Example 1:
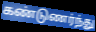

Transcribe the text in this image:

கண்டுணர்ந்து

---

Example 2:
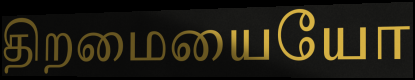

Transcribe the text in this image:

திறமையையோ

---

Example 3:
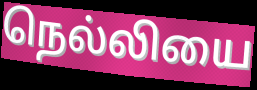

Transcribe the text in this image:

நெல்லியை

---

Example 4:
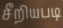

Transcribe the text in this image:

சீறியபடி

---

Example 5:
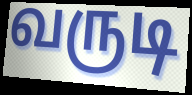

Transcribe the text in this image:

வருடி